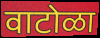
वाटोळा